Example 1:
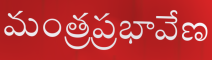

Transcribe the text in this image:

మంత్రప్రభావేణ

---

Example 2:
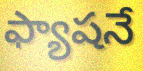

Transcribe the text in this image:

ఫ్యాషనే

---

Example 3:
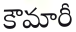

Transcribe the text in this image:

కౌమారీ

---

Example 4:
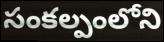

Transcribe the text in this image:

సంకల్పంలోని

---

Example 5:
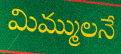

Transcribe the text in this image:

మిమ్ములనే